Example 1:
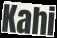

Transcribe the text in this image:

Kahi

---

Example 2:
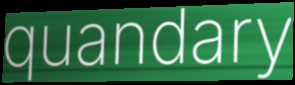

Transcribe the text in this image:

quandary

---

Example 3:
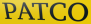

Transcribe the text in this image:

PATCO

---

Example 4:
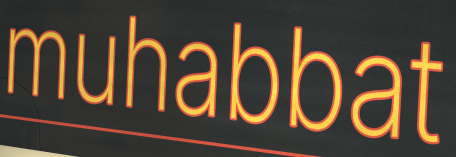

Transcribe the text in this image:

muhabbat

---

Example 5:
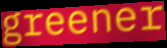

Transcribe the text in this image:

greener